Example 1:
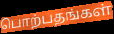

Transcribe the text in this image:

பொற்பதங்கள்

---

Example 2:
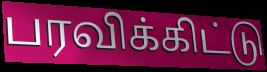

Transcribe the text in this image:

பரவிக்கிட்டு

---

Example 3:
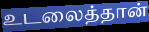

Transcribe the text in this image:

உடலைத்தான்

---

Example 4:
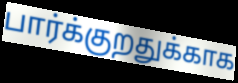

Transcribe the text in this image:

பார்க்குறதுக்காக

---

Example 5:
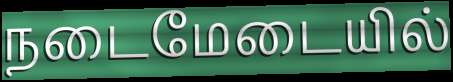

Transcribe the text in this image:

நடைமேடையில்